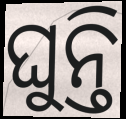
ଘୁନ୍ତି